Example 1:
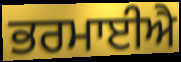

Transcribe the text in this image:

ਭਰਮਾਈਐ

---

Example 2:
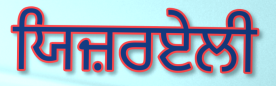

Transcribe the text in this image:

ਯਿਜ਼ਰਏਲੀ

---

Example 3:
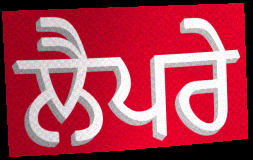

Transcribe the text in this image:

ਲੈਪਰੇ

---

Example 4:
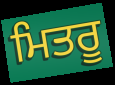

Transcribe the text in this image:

ਮਿਤਰੂ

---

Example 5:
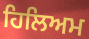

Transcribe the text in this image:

ਹਿਲਿਅਮ